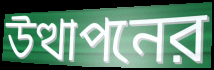
উত্থাপনের